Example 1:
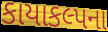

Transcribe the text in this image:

કાયાકલ્પના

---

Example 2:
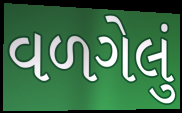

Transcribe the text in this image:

વળગેલું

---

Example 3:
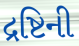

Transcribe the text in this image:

દ્રષ્ટિની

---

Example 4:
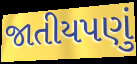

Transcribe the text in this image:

જાતીયપણું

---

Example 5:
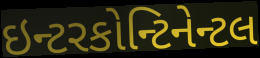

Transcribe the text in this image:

ઇન્ટરકોન્ટિનેન્ટલ